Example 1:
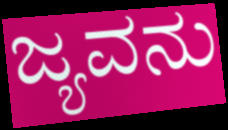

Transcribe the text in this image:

ಜ್ಯವನು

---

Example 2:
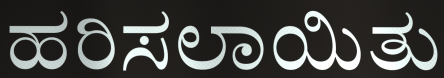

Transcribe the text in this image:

ಹರಿಸಲಾಯಿತು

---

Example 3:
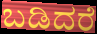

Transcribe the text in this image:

ಬಡಿದರೆ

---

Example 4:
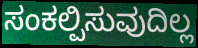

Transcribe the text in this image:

ಸಂಕಲ್ಪಿಸುವುದಿಲ್ಲ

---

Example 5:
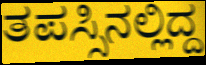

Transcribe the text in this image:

ತಪಸ್ಸಿನಲ್ಲಿದ್ದ